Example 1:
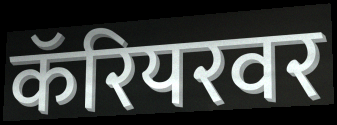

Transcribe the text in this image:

कॅरियरवर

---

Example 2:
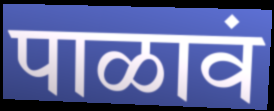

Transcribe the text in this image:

पाळावं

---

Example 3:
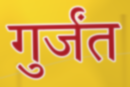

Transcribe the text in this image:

गुर्जंत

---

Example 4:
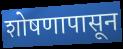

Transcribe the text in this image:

शोषणापासून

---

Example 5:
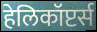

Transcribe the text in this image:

हेलिकॉप्टर्स